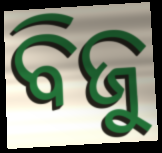
ବିଜୁ